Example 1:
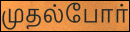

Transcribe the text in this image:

முதல்போர்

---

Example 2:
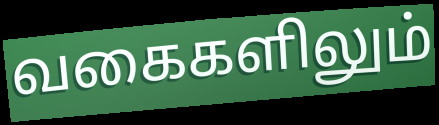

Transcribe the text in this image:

வகைகளிலும்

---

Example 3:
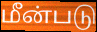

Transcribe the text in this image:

மீன்படு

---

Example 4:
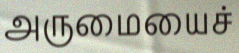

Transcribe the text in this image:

அருமையைச்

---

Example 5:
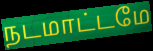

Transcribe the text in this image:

நடமாட்டமே